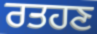
ਰਤਹਣ